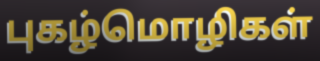
புகழ்மொழிகள்